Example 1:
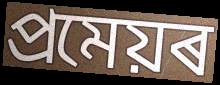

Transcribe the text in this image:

প্ৰমেয়ৰ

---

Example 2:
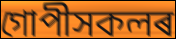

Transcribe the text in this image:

গোপীসকলৰ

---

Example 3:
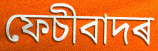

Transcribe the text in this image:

ফেচীবাদৰ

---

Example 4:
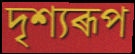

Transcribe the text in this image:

দৃশ্যৰূপ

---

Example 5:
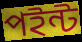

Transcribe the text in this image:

পইন্ট